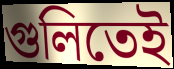
গুলিতেই